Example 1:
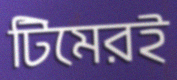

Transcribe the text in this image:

টিমেরই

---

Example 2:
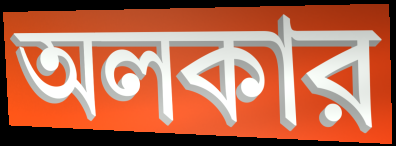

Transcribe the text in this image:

অলকার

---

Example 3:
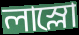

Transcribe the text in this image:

লাস্লো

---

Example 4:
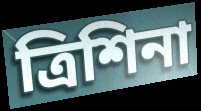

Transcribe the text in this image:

ত্রিশিনা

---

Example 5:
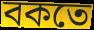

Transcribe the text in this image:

বকতে